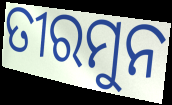
ତୀରମୁନ